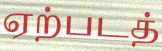
ஏற்படத்